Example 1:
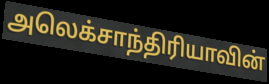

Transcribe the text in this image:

அலெக்சாந்திரியாவின்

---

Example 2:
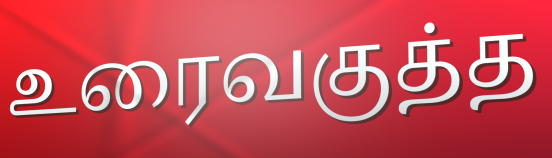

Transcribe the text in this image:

உரைவகுத்த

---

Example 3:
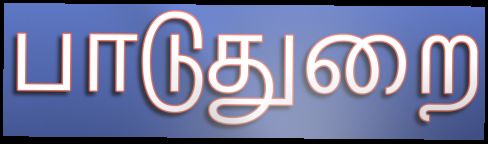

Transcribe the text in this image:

பாடுதுறை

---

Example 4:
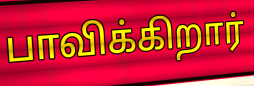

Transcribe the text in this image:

பாவிக்கிறார்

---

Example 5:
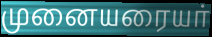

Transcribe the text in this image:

முனையரையர்